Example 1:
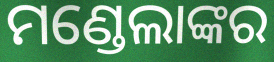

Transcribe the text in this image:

ମଣ୍ଡେଲାଙ୍କର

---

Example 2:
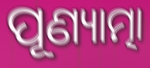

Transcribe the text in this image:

ପୂଣ୍ୟାତ୍ମା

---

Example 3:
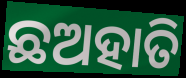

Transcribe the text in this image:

ଛଅହାତି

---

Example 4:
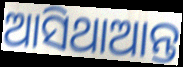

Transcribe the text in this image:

ଆସିଥାଆନ୍ତ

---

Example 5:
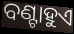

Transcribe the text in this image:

ବଣ୍ଟାହୁଏ